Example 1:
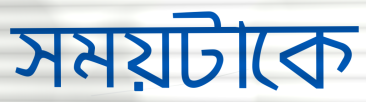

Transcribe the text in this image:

সময়টাকে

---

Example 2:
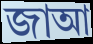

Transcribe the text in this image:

জাআ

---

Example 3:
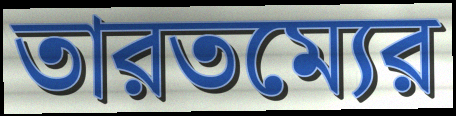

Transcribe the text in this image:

তারতম্যের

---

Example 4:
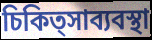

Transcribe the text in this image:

চিকিত্সাব্যবস্থা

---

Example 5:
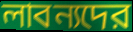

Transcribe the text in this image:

লাবন্যদের